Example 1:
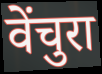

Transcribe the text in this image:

वेंचुरा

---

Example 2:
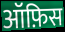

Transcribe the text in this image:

ऑफ़िस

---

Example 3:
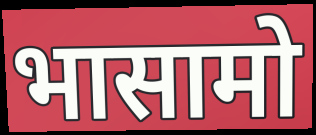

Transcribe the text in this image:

भासामो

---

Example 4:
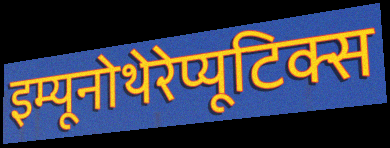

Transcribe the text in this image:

इम्यूनोथेरेप्यूटिक्स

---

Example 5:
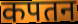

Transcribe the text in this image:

कपतन